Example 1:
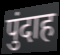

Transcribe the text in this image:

पुंदाह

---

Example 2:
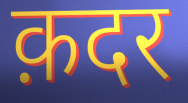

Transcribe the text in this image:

क़दर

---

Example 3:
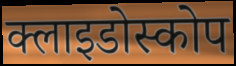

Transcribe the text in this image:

क्लाइडोस्कोप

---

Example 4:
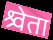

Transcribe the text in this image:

श्र्वेता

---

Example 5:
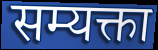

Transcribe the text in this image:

सम्यक्ता